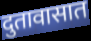
दुतावासात